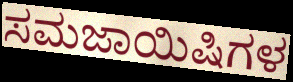
ಸಮಜಾಯಿಷಿಗಳ